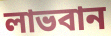
লাভবান